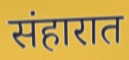
संहारात